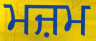
ਮਜ਼ਮ